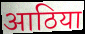
आठिया